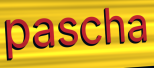
pascha